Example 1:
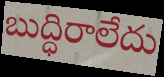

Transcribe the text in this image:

బుద్ధిరాలేదు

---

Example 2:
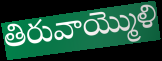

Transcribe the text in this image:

తిరువాయ్మొళి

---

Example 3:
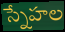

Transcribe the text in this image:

స్నేహల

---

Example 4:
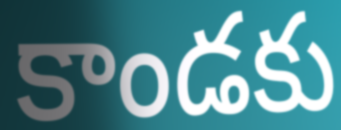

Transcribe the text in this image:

కాండకు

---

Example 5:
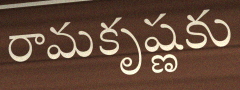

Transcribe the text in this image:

రామకృష్ణకు